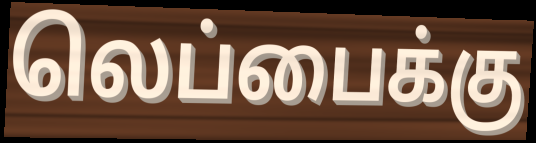
லெப்பைக்கு